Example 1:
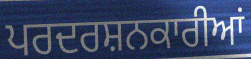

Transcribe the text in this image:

ਪਰਦਰਸ਼ਨਕਾਰੀਆਂ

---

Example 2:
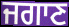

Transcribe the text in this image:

ਜਗਾਣ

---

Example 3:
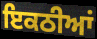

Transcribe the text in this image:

ਇਕਠੀਆਂ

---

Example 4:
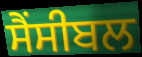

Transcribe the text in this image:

ਸੈਂਸੀਬਲ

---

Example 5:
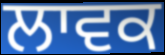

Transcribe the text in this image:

ਲਾਵਕ